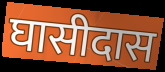
घासीदास